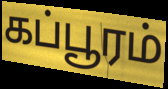
கப்பூரம்